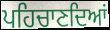
ਪਹਿਚਾਣਦਿਆਂ